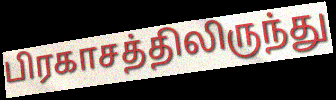
பிரகாசத்திலிருந்து